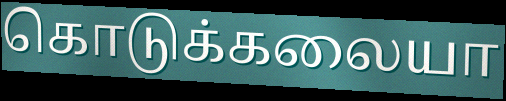
கொடுக்கலையா